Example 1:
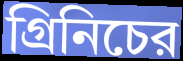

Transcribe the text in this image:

গ্রিনিচের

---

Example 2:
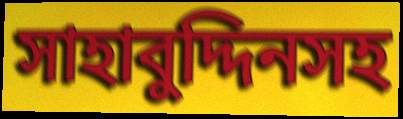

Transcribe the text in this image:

সাহাবুদ্দিনসহ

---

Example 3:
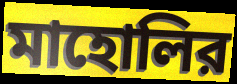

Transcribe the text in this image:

মাহোলির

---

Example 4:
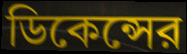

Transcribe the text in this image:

ডিকেন্সের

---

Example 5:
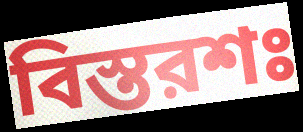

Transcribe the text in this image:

বিস্তরশঃ